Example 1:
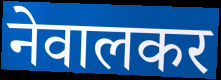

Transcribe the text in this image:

नेवालकर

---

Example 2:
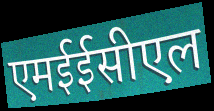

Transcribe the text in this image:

एमईईसीएल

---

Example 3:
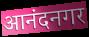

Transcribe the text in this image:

आनंदनगर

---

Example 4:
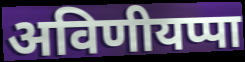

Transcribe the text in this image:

अविणीयप्पा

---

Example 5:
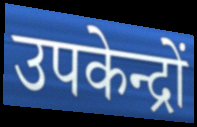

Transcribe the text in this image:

उपकेन्द्रों